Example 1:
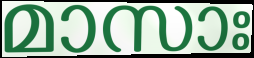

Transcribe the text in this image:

മാസാഃ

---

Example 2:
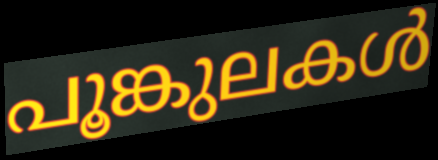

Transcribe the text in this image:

പൂങ്കുലകൾ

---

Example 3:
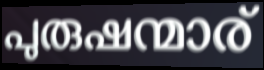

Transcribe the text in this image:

പുരുഷന്മാര്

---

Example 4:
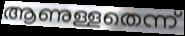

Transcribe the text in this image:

ആണുള്ളതെന്ന്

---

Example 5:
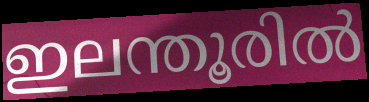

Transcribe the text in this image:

ഇലന്തൂരിൽ